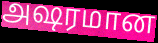
அஷரமான